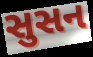
સુસન